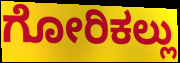
ಗೋರಿಕಲ್ಲು